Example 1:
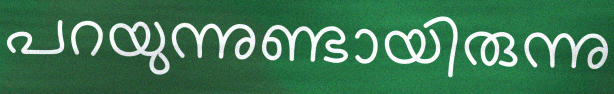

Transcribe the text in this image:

പറയുന്നുണ്ടായിരുന്നു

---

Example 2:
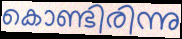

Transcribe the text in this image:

കൊണ്ടിരിന്നു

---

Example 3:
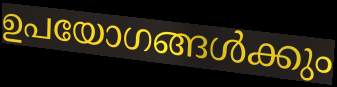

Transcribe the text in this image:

ഉപയോഗങ്ങൾക്കും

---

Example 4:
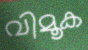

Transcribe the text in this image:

വിമൂക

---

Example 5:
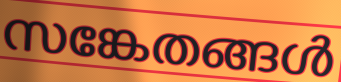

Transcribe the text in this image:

സങ്കേതങ്ങൾ